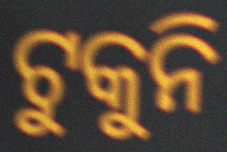
ଟୁକୁନି